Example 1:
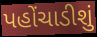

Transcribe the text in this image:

પહોંચાડીશું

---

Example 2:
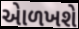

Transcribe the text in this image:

એાળખશે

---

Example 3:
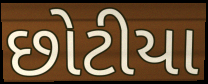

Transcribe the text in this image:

છોટીયા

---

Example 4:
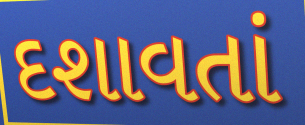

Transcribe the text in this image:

દશાવતાં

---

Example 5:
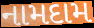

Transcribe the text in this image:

નામદામ